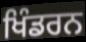
ਖਿੰਡਰਨ